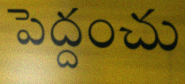
పెద్దంచు